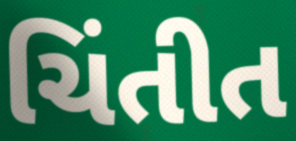
ચિંતીત